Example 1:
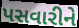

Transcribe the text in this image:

પસવારીને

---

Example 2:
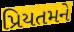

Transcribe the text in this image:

પ્રિયતમને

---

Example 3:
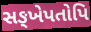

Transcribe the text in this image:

સઙ્ખેપતોપિ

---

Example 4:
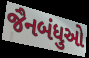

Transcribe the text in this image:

જૈનબંધુઓ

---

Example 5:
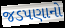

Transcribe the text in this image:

જડપણાનો